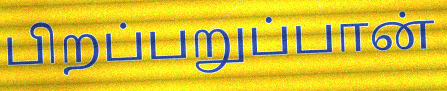
பிறப்பறுப்பான்